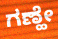
ಗಣ್ಹೇ